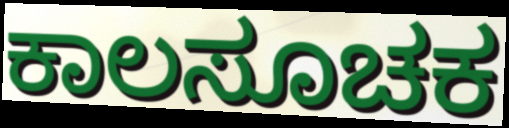
ಕಾಲಸೂಚಕ